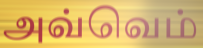
அவ்வெம்